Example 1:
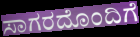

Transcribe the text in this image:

ಸಾಗರದೊಂದಿಗೆ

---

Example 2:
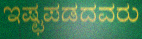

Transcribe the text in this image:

ಇಷ್ಟಪಡದವರು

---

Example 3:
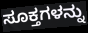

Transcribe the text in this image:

ಸೂಕ್ತಗಳನ್ನು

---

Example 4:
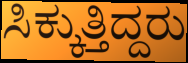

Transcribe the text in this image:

ಸಿಕ್ಕುತ್ತಿದ್ದರು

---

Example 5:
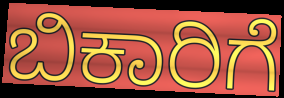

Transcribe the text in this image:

ಬಿಕಾರಿಗೆ